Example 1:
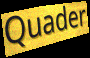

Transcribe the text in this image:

Quader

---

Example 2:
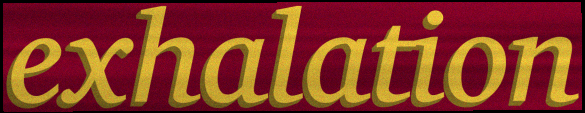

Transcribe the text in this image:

exhalation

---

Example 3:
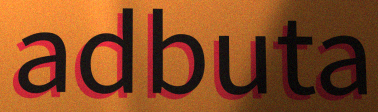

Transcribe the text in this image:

adbuta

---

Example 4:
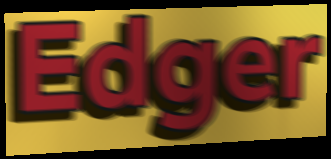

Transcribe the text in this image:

Edger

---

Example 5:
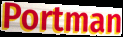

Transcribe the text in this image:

Portman